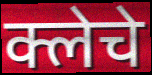
क्लेचे